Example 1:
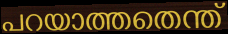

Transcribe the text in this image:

പറയാത്തതെന്ത്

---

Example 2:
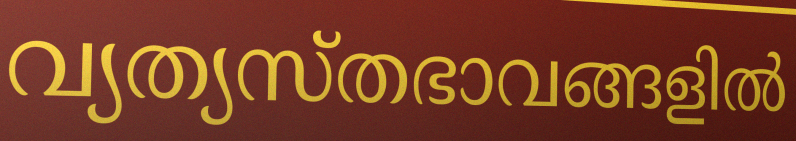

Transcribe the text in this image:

വ്യത്യസ്തഭാവങ്ങളിൽ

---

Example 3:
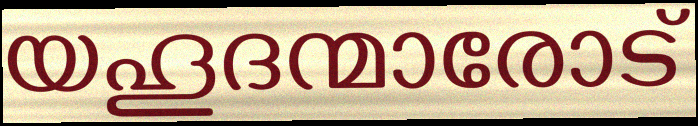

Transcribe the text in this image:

യഹൂദന്മാരോട്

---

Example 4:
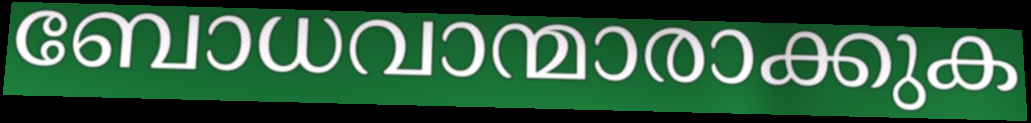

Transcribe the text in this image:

ബോധവാന്മാരാക്കുക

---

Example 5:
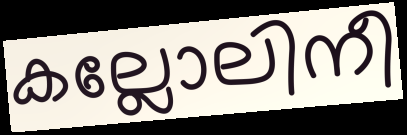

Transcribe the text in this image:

കല്ലോലിനീ